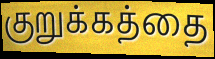
குறுக்கத்தை